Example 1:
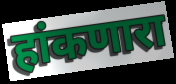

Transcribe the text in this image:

हांकणारा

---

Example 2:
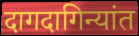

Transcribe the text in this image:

दागदागिन्यांत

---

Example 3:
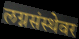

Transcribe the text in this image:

लग्नसंस्थेवर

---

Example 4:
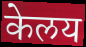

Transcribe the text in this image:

केलय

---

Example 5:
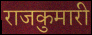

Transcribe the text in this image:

राजकुमारी